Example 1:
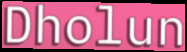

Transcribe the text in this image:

Dholun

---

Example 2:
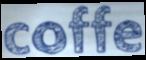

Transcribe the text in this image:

coffe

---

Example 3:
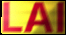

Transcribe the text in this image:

LAI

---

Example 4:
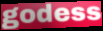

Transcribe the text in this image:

godess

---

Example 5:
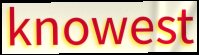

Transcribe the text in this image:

knowest